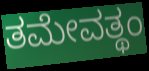
ತಮೇವತ್ಥಂ